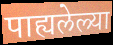
पाह्यलेल्या